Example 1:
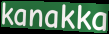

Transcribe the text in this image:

kanakka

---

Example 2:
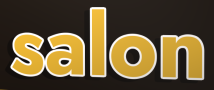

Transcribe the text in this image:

salon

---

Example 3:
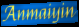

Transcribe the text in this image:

Anmaiyin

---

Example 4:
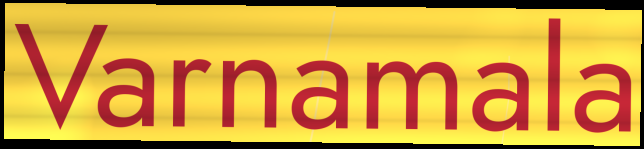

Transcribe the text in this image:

Varnamala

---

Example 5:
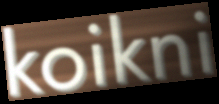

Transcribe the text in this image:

koikni